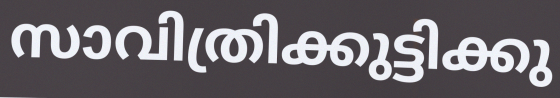
സാവിത്രിക്കുട്ടിക്കു